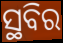
ସ୍ଥବିର